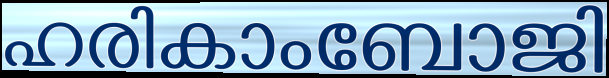
ഹരികാംബോജി